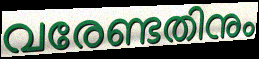
വരേണ്ടതിനും